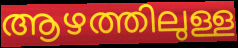
ആഴത്തിലുള്ള